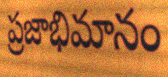
ప్రజాభిమానం